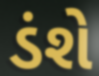
ડંશે